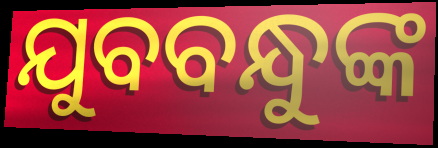
ଯୁବବନ୍ଧୁଙ୍କ